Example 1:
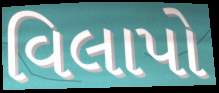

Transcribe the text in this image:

વિલાપો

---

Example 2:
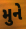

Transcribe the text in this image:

મુને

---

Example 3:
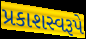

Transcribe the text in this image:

પ્રકાશસ્વરૂપે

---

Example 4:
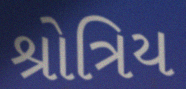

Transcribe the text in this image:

શ્રોત્રિય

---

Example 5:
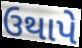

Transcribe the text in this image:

ઉથાપે